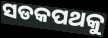
ସଡକପଥକୁ